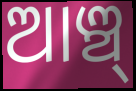
ଆଞ୍ଚ୍